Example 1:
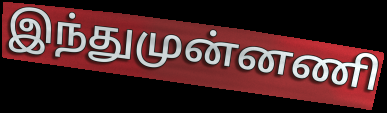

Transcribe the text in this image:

இந்துமுன்னணி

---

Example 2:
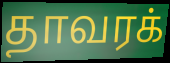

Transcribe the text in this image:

தாவரக்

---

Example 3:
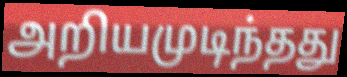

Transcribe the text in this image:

அறியமுடிந்தது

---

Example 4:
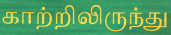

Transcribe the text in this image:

காற்றிலிருந்து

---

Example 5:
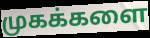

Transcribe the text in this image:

முகக்களை